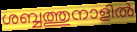
ശബ്ബത്തുനാളിൽ